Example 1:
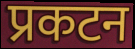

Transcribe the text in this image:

प्रकटन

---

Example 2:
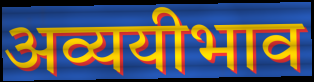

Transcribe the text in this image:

अव्ययीभाव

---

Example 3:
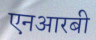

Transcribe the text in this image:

एनआरबी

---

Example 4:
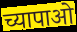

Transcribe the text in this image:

च्यापाओ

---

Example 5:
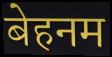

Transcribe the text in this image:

बेहनम